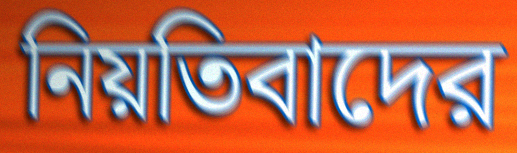
নিয়তিবাদের